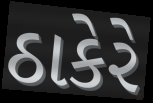
ઠાકેરે